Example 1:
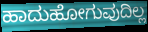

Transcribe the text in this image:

ಹಾದುಹೋಗುವುದಿಲ್ಲ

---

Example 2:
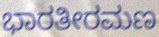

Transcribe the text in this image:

ಭಾರತೀರಮಣ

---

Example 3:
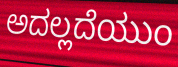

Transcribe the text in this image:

ಅದಲ್ಲದೆಯುಂ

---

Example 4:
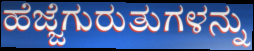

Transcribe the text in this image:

ಹೆಜ್ಜೆಗುರುತುಗಳನ್ನು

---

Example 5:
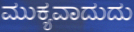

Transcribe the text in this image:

ಮುಕ್ಯವಾದುದು